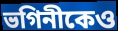
ভগিনীকেও